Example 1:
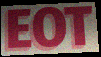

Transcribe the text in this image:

EOT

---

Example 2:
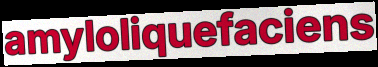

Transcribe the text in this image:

amyloliquefaciens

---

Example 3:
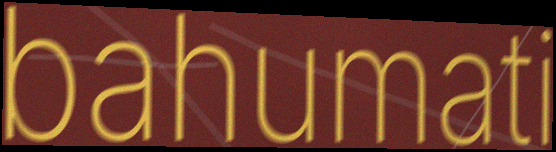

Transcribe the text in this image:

bahumati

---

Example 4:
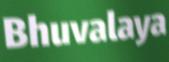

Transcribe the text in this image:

Bhuvalaya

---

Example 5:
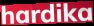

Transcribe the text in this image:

hardika